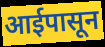
आईपासून